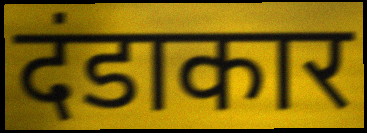
दंडाकार